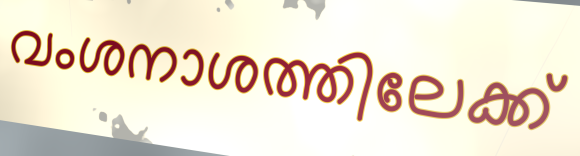
വംശനാശത്തിലേക്ക്